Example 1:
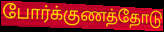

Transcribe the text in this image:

போர்க்குணத்தோடு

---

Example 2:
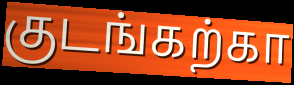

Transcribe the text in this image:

குடங்கற்கா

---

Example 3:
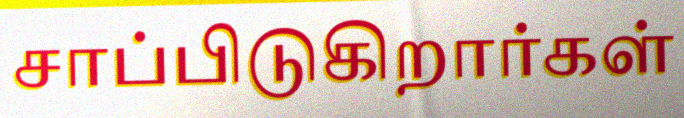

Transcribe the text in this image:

சாப்பிடுகிறார்கள்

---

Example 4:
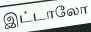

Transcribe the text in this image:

இட்டாலோ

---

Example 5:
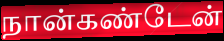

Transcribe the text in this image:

நான்கண்டேன்